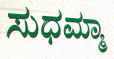
ಸುಧಮ್ಮಾ